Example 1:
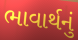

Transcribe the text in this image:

ભાવાર્થનું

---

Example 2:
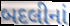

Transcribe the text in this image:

બદલીનાં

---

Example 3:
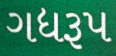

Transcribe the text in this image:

ગદ્યરૂપ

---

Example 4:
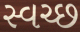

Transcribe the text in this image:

સ્વચ્છ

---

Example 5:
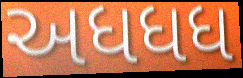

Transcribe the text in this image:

અધધધ